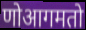
णोआगमतो